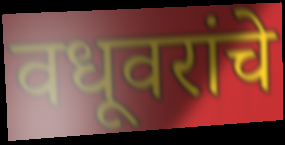
वधूवरांचे